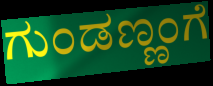
ಗುಂಡಣ್ಣಂಗೆ